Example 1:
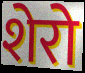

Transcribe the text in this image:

शेरो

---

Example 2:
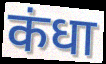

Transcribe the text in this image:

कंधा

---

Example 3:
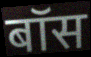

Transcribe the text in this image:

बॉस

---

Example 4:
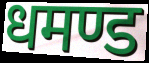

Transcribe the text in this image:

धमण्ड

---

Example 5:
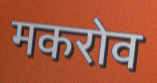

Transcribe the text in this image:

मकरोव